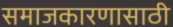
समाजकारणासाठी